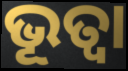
ଭୂତ୍ଵା